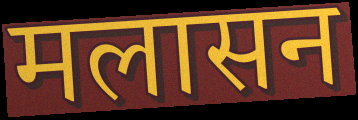
मलासन